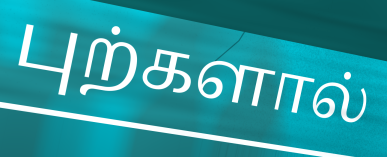
புற்களால்